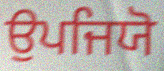
ਉਪਜਿਯੋ